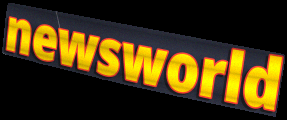
newsworld